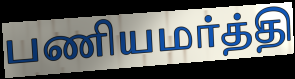
பணியமர்த்தி